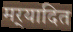
मर्यादित